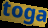
toga